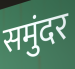
समुंदर